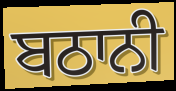
ਬਠਾਨੀ